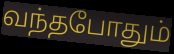
வந்தபோதும்